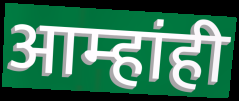
आम्हांही